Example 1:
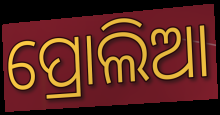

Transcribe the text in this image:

ପ୍ରୋଲିଆ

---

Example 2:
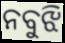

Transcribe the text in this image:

ନବୁଝି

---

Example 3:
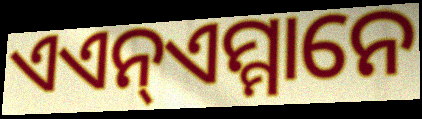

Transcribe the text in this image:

ଏଏନ୍ଏମ୍ମାନେ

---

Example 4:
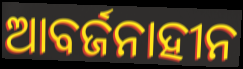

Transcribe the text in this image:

ଆବର୍ଜନାହୀନ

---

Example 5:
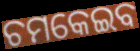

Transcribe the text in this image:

ଚମକେଇବ